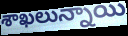
శాఖలున్నాయి